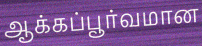
ஆக்கப்பூர்வமான